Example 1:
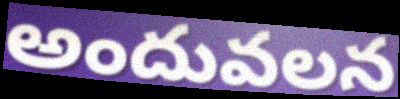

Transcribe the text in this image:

అందువలన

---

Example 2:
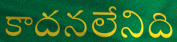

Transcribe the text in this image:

కాదనలేనిది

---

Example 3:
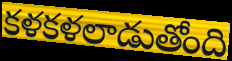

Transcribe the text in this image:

కళకళలాడుతోంది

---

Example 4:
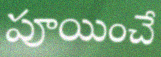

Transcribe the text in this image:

పూయించే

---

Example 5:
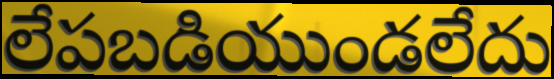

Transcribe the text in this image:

లేపబడియుండలేదు